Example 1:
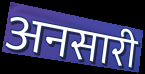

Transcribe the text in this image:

अनसारी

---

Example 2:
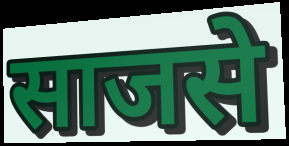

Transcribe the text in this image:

साजसे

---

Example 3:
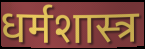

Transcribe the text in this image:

धर्मशास्त्र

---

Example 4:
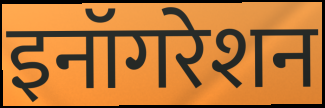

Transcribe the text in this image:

इनॉगरेशन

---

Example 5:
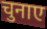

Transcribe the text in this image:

चुनाए